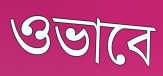
ওভাবে